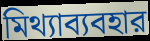
মিথ্যাব্যবহার